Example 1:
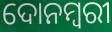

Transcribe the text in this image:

ଦୋନମ୍ବରୀ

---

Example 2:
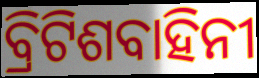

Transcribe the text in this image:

ବ୍ରିଟିଶବାହିନୀ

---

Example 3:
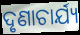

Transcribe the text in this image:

ଦୃଣାଚାର୍ଯ୍ୟ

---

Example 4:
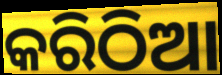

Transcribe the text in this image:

କରିଠିଆ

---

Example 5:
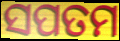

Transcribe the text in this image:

ସପତମ